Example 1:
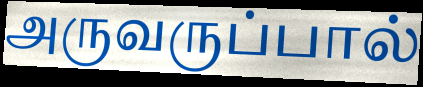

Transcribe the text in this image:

அருவருப்பால்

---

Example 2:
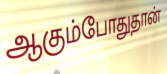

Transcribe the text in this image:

ஆகும்போதுதான்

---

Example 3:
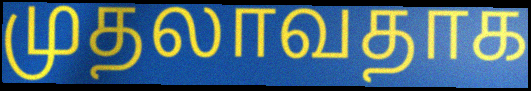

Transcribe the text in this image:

முதலாவதாக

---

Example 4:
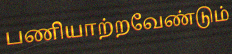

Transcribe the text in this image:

பணியாற்றவேண்டும்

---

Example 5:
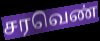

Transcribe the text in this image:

சரவெண்